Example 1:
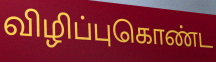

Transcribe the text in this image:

விழிப்புகொண்ட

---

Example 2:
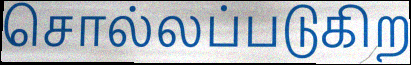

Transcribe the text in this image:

சொல்லப்படுகிற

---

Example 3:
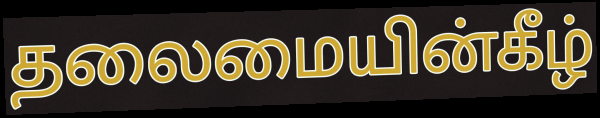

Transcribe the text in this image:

தலைமையின்கீழ்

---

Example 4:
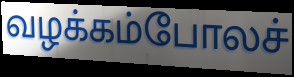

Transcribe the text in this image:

வழக்கம்போலச்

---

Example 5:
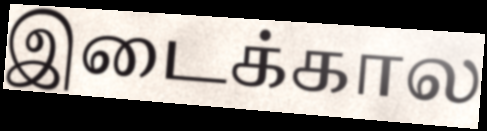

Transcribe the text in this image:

இடைக்கால